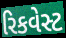
રિકવેસ્ટ